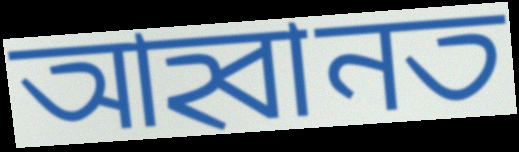
আহ্বানত